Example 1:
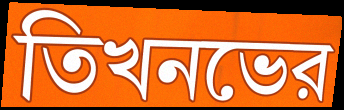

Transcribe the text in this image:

তিখনভের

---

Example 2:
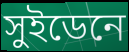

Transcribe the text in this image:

সুইডেনে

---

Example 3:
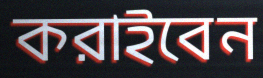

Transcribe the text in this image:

করাইবেন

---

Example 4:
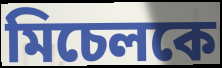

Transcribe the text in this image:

মিচেলকে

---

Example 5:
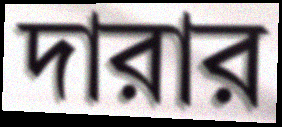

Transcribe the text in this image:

দারার